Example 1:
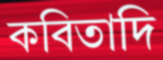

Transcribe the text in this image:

কবিতাদি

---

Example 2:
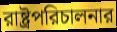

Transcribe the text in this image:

রাষ্ট্রপরিচালনার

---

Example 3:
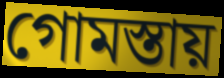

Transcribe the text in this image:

গোমস্তায়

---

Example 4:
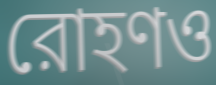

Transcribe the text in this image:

রোহণও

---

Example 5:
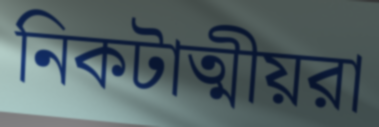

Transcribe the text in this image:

নিকটাত্মীয়রা